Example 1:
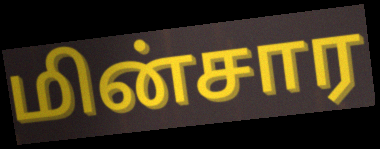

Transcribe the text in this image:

மின்சார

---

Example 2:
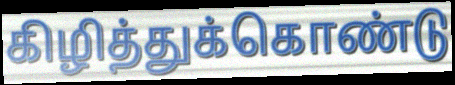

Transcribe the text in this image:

கிழித்துக்கொண்டு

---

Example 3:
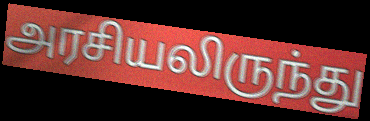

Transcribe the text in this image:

அரசியலிருந்து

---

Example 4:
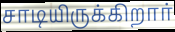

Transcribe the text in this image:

சாடியிருக்கிறார்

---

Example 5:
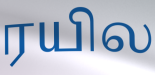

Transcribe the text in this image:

ரயில